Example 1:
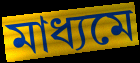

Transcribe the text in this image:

মাধ্যমে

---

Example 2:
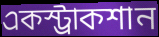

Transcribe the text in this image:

একস্ট্রাকশান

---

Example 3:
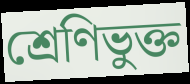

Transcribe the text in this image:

শ্রেণিভুক্ত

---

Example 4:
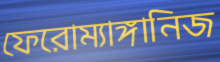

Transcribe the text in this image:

ফেরোম্যাঙ্গানিজ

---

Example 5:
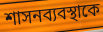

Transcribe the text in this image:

শাসনব্যবস্থাকে